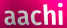
aachi